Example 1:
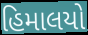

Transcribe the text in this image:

હિમાલયો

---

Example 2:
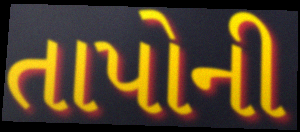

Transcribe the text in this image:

તાપોની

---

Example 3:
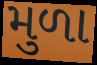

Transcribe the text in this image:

મુળા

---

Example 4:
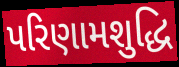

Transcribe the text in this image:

પરિણામશુદ્ધિ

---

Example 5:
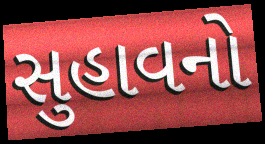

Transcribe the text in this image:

સુહાવનો